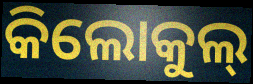
କିଲୋକୁଲ୍